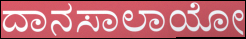
ದಾನಸಾಲಾಯೋ